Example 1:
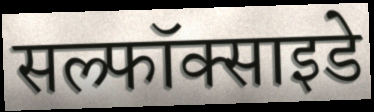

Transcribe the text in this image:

सल्फॉक्साइडे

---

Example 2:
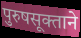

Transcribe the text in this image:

पुरुषसूक्ताने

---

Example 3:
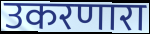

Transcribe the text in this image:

उकरणारा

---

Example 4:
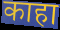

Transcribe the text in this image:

काहा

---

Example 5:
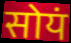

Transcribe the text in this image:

सोयं